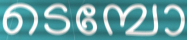
ടെമ്പോ